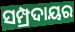
ସମ୍ପ୍ରଦାୟର